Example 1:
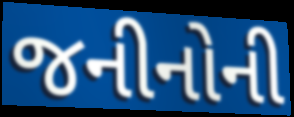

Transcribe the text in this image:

જનીનોની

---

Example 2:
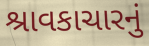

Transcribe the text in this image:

શ્રાવકાચારનું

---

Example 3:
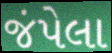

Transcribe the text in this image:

જંપેલા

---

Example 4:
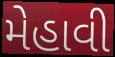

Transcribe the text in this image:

મેહાવી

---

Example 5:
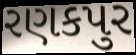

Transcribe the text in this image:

રણકપુર